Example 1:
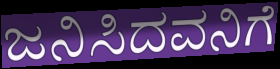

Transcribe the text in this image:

ಜನಿಸಿದವನಿಗೆ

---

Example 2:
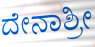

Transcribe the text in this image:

ದೇನಾಶ್ರೀ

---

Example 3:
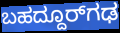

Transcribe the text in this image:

ಬಹದ್ದೂರ್‌ಗಢ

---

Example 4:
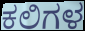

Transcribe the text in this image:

ಕಲಿಗಳ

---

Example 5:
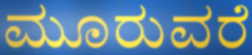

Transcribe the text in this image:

ಮೂರುವರೆ